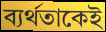
ব্যর্থতাকেই